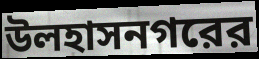
উলহাসনগরের